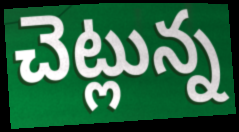
చెట్లున్న